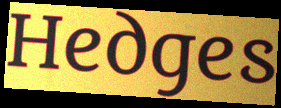
Hedges